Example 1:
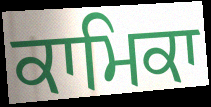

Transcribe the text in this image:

ਕਾਮਿਕਾ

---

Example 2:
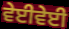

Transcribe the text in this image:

ਵੇਈਵੇਈ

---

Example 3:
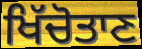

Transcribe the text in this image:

ਖਿੱਚੋਤਾਣ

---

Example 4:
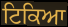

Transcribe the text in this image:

ਟਿਕਿਆ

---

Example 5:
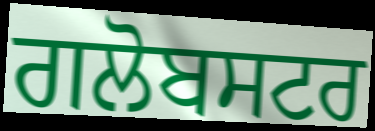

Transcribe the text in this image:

ਗਲੋਬਸਟਰ